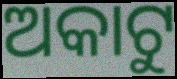
ଅକାଟୁ